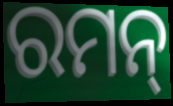
ରମନ୍